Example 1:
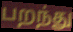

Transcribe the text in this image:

பறந்து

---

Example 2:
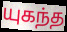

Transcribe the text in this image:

யுகந்த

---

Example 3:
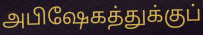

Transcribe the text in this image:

அபிஷேகத்துக்குப்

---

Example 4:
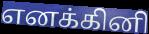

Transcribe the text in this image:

எனக்கினி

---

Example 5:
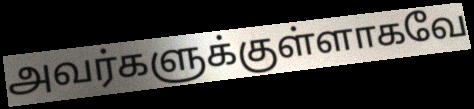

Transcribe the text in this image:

அவர்களுக்குள்ளாகவே